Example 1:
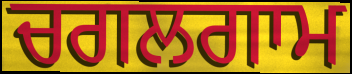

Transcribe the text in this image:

ਚਗਲਗਾਮ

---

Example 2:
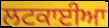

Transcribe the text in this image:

ਲਟਕਾਈਆ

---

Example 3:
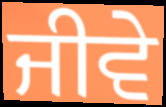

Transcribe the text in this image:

ਜੀਵੇ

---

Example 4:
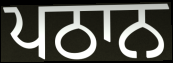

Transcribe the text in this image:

ਪਠਾਨ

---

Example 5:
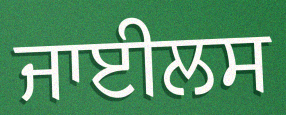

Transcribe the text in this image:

ਜਾਈਲਸ